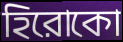
হিরোকো